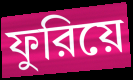
ফুরিয়ে